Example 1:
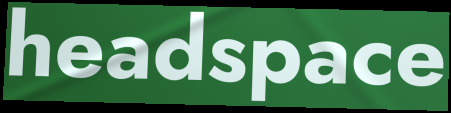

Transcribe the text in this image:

headspace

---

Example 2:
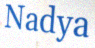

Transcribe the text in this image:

Nadya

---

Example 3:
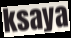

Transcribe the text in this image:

ksaya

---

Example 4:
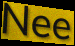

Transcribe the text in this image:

Nee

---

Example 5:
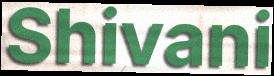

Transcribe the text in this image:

Shivani